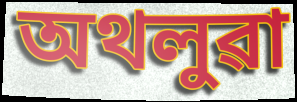
অথলুৱা